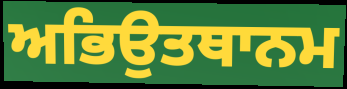
ਅਭਿਉਤਥਾਨਮ